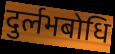
दुर्लभबोधि